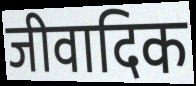
जीवादिक